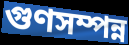
গুণসম্পন্ন